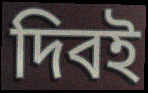
দিবই